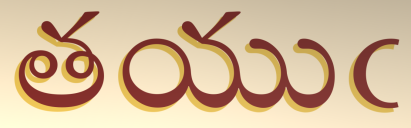
తయుఁ